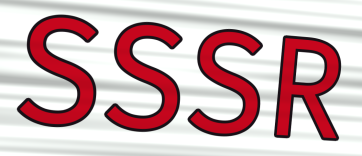
SSSR